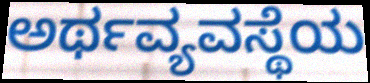
ಅರ್ಥವ್ಯವಸ್ಥೆಯ